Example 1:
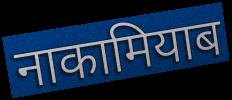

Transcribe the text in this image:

नाकामियाब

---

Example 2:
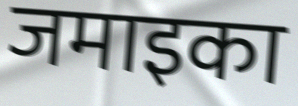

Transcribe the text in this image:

जमाइका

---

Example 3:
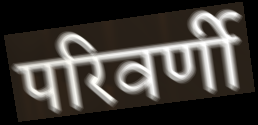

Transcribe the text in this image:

परिवर्णी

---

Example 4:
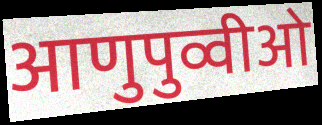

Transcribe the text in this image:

आणुपुव्वीओ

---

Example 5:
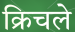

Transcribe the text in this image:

क्रिचले